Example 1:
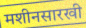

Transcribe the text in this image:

मशीनसारखी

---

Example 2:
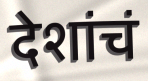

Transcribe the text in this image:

देशांचं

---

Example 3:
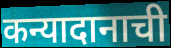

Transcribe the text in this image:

कन्यादानाची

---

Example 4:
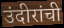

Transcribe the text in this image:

उंदीरांची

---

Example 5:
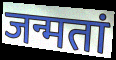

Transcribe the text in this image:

जन्मतां